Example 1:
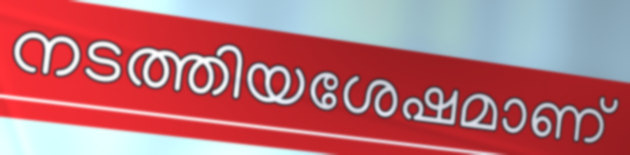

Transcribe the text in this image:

നടത്തിയശേഷമാണ്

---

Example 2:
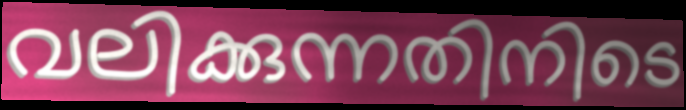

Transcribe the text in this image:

വലിക്കുന്നതിനിടെ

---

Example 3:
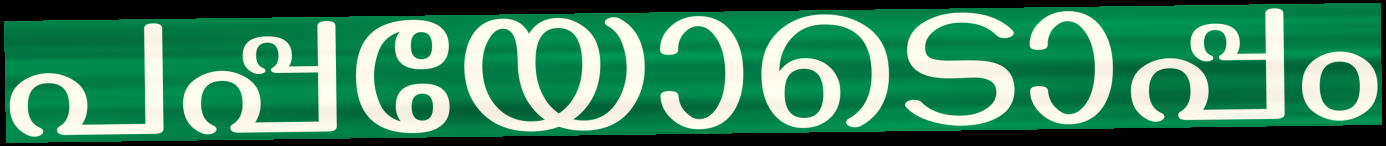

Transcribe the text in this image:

പപ്പയോടൊപ്പം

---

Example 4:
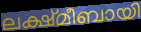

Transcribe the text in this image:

ലക്ഷ്മീബായി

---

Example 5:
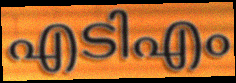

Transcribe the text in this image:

എടിഎം